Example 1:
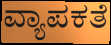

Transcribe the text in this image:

ವ್ಯಾಪಕತೆ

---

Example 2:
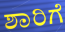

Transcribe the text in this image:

ಶಾರಿಗೆ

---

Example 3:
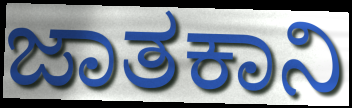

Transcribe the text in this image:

ಜಾತಕಾನಿ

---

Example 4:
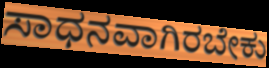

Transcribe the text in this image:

ಸಾಧನವಾಗಿರಬೇಕು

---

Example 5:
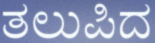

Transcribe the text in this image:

ತಲುಪಿದ